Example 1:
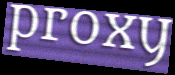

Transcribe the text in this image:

proxy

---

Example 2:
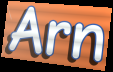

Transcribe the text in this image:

Arn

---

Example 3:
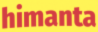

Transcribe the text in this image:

himanta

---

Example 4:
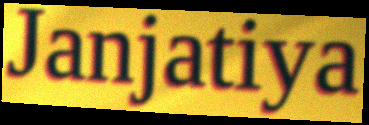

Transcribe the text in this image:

Janjatiya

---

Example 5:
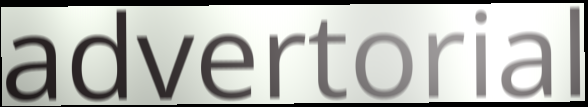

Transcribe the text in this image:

advertorial